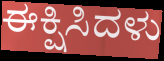
ಈಕ್ಷಿಸಿದಳು